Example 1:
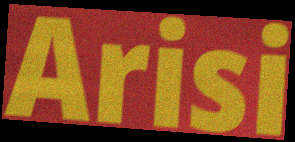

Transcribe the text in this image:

Arisi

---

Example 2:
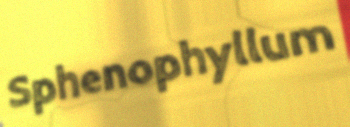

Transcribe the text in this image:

Sphenophyllum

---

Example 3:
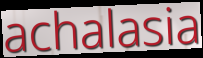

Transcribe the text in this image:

achalasia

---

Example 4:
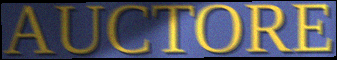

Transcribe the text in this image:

AUCTORE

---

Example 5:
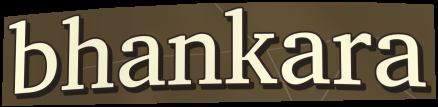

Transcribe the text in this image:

bhankara